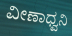
ವೀಣಾಧ್ವನಿ